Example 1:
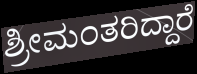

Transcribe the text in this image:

ಶ್ರೀಮಂತರಿದ್ದಾರೆ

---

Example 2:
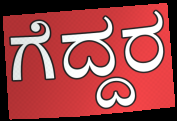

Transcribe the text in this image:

ಗೆದ್ದರ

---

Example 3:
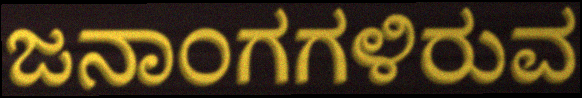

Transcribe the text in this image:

ಜನಾಂಗಗಳಿರುವ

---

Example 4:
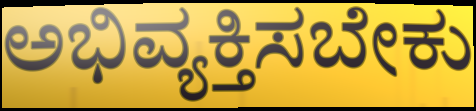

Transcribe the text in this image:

ಅಭಿವ್ಯಕ್ತಿಸಬೇಕು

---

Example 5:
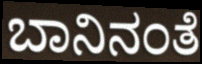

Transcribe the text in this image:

ಬಾನಿನಂತೆ